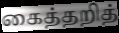
கைத்தறித்